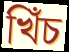
খিঁচ